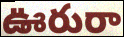
ఊరురా